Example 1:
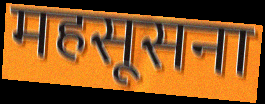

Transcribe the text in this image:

महसूसना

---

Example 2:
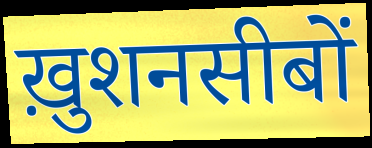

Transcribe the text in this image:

ख़ुशनसीबों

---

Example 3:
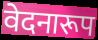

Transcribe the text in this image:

वेदनारूप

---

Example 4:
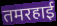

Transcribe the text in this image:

तमरहाई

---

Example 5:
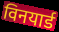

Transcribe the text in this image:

विनयार्ड